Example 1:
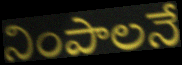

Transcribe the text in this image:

నింపాలనే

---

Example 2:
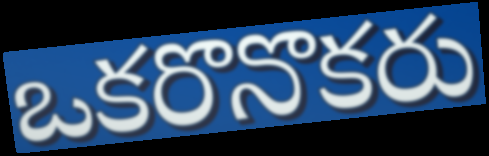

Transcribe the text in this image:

ఒకరొనొకరు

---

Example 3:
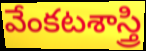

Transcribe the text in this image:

వేంకటశాస్త్రి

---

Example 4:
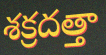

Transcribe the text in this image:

శక్రదత్తా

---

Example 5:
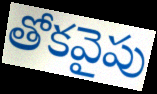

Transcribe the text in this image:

తోకవైపు